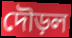
দৌড়ল